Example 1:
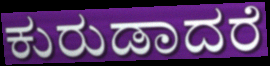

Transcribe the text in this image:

ಕುರುಡಾದರೆ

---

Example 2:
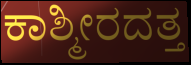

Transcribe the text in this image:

ಕಾಶ್ಮೀರದತ್ತ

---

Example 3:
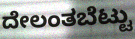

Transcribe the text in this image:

ದೇಲಂತಬೆಟ್ಟು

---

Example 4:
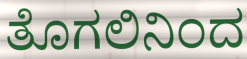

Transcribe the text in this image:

ತೊಗಲಿನಿಂದ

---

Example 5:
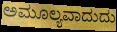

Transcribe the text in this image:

ಅಮೂಲ್ಯವಾದುದು